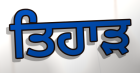
ਤਿਹਾੜ